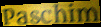
Paschim